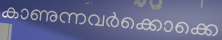
കാണുന്നവർക്കൊക്കെ